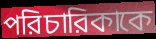
পরিচারিকাকে